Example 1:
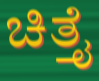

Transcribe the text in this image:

ಚಿತ್ತೈ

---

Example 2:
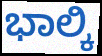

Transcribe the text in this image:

ಭಾಲ್ಕಿ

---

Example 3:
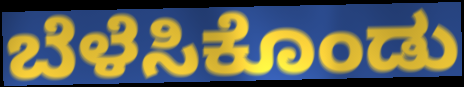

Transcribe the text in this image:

ಬೆಳೆಸಿಕೊಂಡು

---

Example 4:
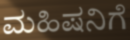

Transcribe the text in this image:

ಮಹಿಷನಿಗೆ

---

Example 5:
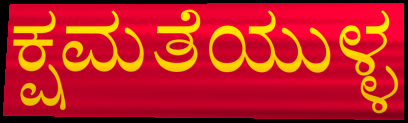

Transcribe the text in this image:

ಕ್ಷಮತೆಯುಳ್ಳ